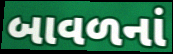
બાવળનાં